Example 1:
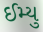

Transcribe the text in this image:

ઈમ્યુ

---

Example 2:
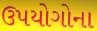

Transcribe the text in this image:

ઉપયોગોના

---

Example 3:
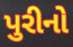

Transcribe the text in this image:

પુરીનો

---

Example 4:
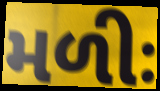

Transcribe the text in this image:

મળીઃ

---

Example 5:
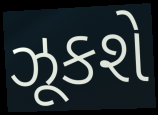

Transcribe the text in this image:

ઝૂકશે